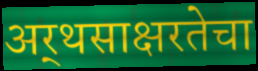
अर्थसाक्षरतेचा